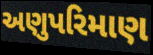
અણુપરિમાણ